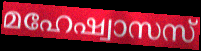
മഹേഷ്വാസസ്